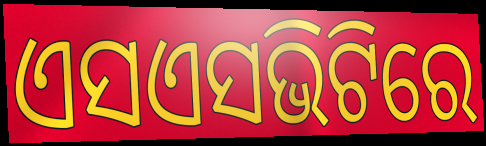
ଏସଏସଭିଟିରେ